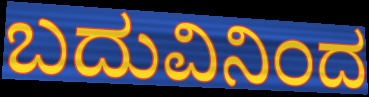
ಬದುವಿನಿಂದ